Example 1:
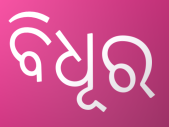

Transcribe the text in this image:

ବିଧୂର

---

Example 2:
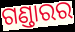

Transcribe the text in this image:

ଗଣ୍ଡାରର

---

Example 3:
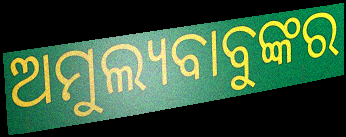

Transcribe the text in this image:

ଅମୁଲ୍ୟବାବୁଙ୍କର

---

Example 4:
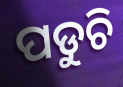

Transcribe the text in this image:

ପଡୁଚି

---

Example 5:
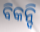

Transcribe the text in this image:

ବିକନ୍ଦି